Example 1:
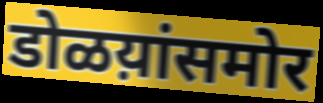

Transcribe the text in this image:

डोळय़ांसमोर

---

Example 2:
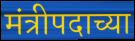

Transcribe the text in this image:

मंत्रीपदाच्या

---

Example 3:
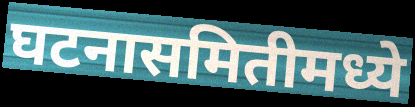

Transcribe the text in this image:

घटनासमितीमध्ये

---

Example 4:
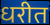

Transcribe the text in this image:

धरीत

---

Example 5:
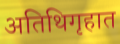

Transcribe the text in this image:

अतिथिगृहात